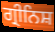
ਗ੍ਰੀਨਿਸ਼